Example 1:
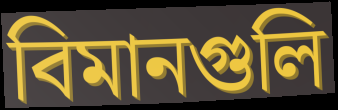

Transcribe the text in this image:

বিমানগুলি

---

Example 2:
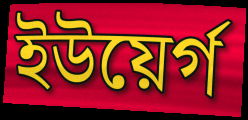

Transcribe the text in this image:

ইউয়ের্গ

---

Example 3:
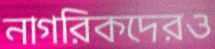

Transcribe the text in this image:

নাগরিকদেরও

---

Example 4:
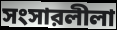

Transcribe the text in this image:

সংসারলীলা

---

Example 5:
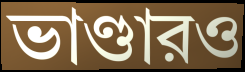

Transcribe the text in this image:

ভাণ্ডারও